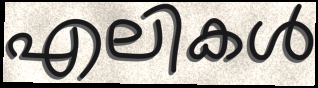
എലികൾ